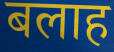
बलाह